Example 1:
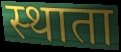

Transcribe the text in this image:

स्थाता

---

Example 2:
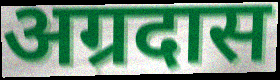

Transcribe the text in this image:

अग्रदास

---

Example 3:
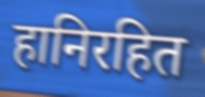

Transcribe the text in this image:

हानिरहित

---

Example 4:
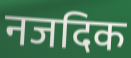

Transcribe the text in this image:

नजदिक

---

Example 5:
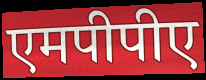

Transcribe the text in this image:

एमपीपीए